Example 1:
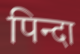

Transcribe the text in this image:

पिन्दा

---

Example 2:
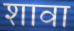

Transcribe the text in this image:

शावा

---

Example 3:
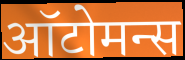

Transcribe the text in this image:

ऑटोमन्स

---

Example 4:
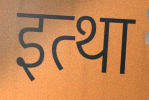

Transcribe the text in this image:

इत्था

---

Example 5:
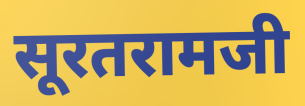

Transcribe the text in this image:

सूरतरामजी